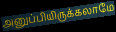
அனுப்பியிருக்கலாமே